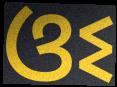
ଓଽ